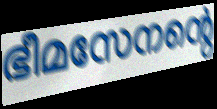
ഭീമസേനന്റെ